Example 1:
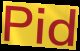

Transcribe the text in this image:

Pid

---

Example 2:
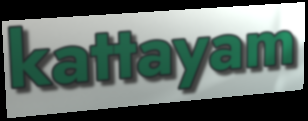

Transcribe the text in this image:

kattayam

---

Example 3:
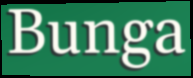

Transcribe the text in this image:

Bunga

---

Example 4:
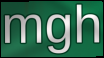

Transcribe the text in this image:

mgh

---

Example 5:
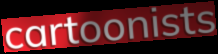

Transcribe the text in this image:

cartoonists